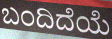
ಬಂದಿದೆಯೆ